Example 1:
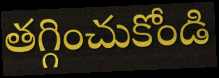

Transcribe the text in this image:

తగ్గించుకోండి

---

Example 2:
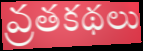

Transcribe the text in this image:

వ్రతకథలు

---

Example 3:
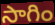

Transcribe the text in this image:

సాగిం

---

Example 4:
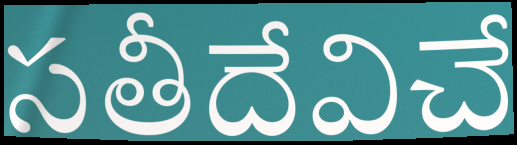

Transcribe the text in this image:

సతీదేవిచే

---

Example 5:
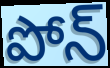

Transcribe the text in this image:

పోన్